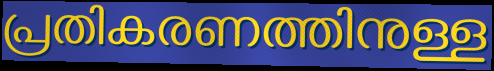
പ്രതികരണത്തിനുള്ള